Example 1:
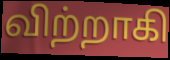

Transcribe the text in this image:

விற்றாகி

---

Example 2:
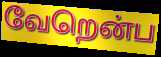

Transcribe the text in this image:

வேறென்ப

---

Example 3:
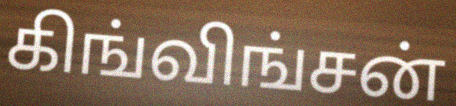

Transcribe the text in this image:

கிங்விங்சன்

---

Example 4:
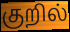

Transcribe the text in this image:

குறில்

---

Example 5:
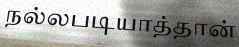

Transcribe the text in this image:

நல்லபடியாத்தான்